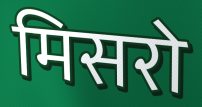
मिसरो